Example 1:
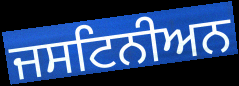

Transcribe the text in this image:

ਜਸਟਿਨੀਅਨ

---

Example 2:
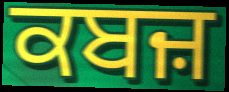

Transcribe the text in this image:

ਕਬਜ਼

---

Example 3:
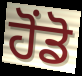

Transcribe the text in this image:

ਹੋਂਡੋ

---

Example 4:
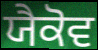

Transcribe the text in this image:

ਯੈਕੋਵ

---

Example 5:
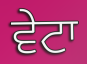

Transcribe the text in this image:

ਵੇਟਾ